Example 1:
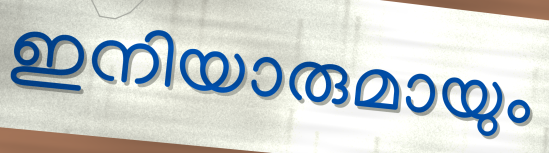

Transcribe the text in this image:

ഇനിയാരുമായും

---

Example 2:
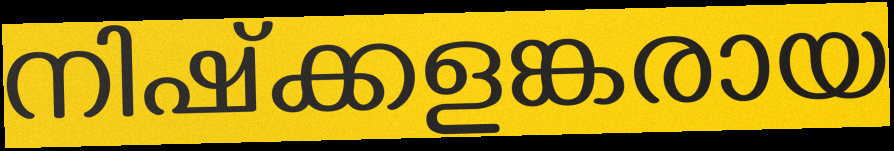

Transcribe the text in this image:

നിഷ്ക്കളങ്കരായ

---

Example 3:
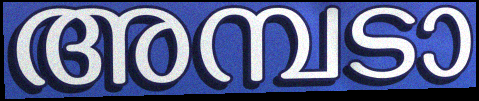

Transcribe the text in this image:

അമ്പടാ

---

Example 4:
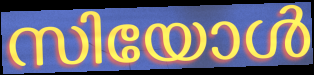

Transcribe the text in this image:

സിയോൾ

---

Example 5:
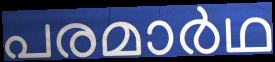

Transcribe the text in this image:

പരമാർഥ